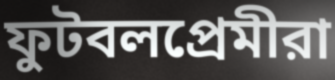
ফুটবলপ্রেমীরা